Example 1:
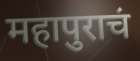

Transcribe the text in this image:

महापुराचं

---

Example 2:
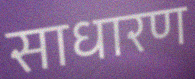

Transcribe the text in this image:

साधारण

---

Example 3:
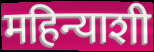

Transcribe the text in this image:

महिन्याशी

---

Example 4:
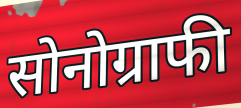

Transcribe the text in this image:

सोनोग्राफी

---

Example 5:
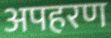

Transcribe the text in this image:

अपहरण